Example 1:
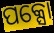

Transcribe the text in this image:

ପକ୍ସୋ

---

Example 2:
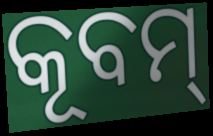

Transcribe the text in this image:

କୂବମ୍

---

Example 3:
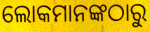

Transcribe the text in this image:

ଲୋକମାନଙ୍କଠାରୁ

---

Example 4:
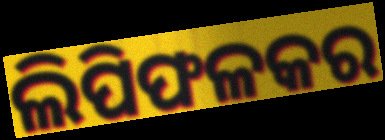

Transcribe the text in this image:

ଲିପିଫଳକର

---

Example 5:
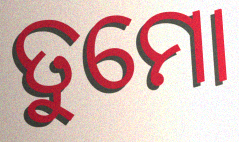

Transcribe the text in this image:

ତୁମୋ